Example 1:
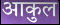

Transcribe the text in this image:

आकुल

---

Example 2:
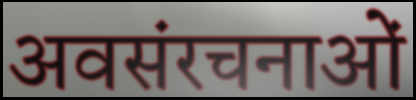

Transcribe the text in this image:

अवसंरचनाओं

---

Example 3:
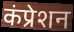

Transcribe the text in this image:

कंप्रेशन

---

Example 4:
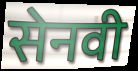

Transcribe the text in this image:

सेनवी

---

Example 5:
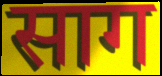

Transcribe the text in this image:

साग